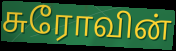
சுரோவின்